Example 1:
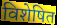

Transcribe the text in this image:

विशेषित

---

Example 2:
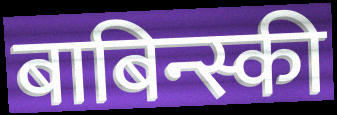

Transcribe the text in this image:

बाबिन्स्की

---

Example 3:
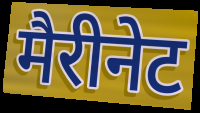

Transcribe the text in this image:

मैरीनेट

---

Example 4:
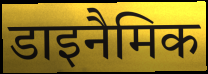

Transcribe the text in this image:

डाइनैमिक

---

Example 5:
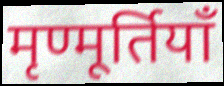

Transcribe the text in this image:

मृण्मूर्तियाँ